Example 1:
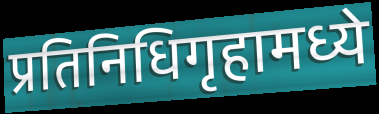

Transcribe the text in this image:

प्रतिनिधिगृहामध्ये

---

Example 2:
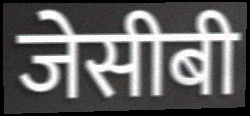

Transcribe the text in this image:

जेसीबी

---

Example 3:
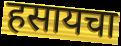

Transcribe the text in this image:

हसायचा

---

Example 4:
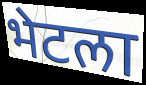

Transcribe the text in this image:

भेटला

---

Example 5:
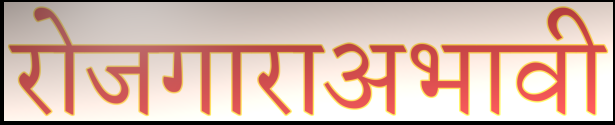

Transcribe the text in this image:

रोजगाराअभावी